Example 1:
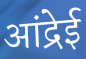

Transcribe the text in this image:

आंद्रेई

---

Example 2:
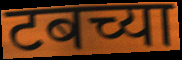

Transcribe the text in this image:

टबच्या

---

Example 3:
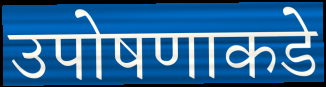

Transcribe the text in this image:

उपोषणाकडे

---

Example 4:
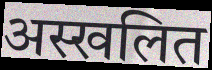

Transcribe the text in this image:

अस्खलित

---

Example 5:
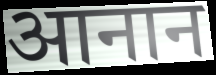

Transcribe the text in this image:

आनान